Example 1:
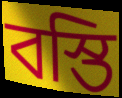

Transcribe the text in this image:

বস্তি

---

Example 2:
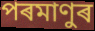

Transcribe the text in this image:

পৰমাণুৰ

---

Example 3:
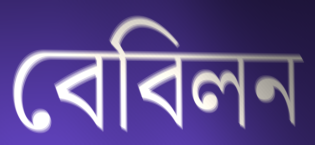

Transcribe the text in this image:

বেবিলন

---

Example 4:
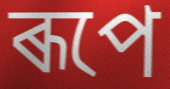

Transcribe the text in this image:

ৰূপে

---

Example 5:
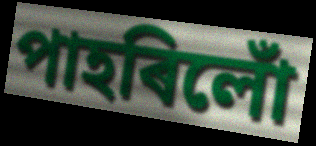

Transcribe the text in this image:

পাহৰিলোঁ